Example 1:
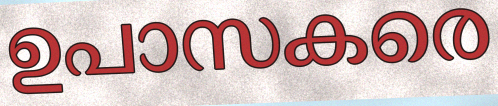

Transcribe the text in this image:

ഉപാസകരെ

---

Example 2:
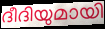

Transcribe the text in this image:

ദീദിയുമായി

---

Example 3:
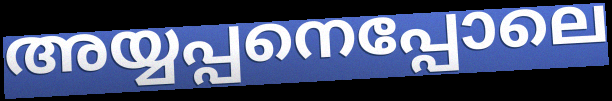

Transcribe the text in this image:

അയ്യപ്പനെപ്പോലെ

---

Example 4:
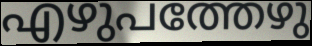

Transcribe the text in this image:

എഴുപത്തേഴു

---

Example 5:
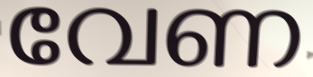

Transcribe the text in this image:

വേണ